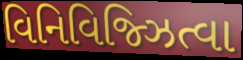
વિનિવિજ્ઝિત્વા